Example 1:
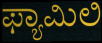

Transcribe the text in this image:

ಫ್ಯಾಮಿಲಿ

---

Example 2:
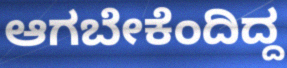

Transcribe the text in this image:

ಆಗಬೇಕೆಂದಿದ್ದ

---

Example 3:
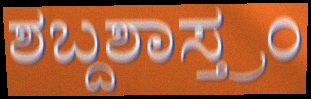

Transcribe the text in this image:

ಶಬ್ದಶಾಸ್ತ್ರಂ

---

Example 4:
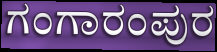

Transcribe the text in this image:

ಗಂಗಾರಂಪುರ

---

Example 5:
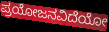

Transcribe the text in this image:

ಪ್ರಯೋಜನವಿದೆಯೋ